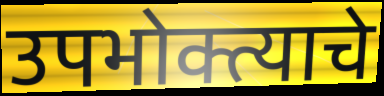
उपभोक्त्याचे